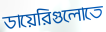
ডায়েরিগুলোতে